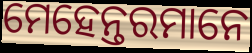
ମେହେନ୍ତରମାନେ